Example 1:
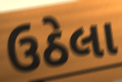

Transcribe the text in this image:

ઉઠેલા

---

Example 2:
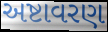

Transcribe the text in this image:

અષ્ટાવરણ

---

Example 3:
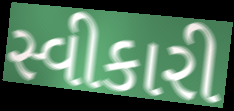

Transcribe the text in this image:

સ્વીકારી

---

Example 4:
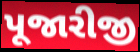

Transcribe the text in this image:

પૂજારીજી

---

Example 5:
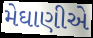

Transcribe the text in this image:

મેઘાણીએ